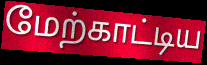
மேற்காட்டிய